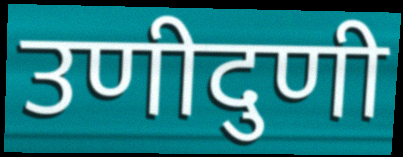
उणीदुणी